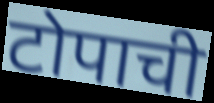
टोपाची